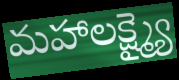
మహాలక్ష్మ్యై